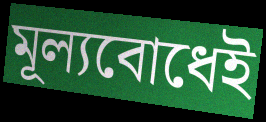
মূল্যবোধেই